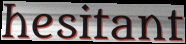
hesitant